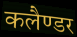
कलैण्डर